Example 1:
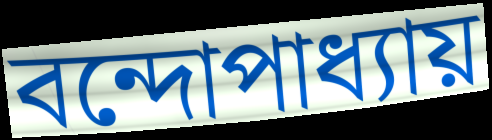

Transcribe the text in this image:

বন্দোপাধ্যায়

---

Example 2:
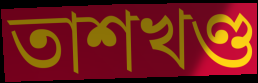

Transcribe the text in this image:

তাশখণ্ড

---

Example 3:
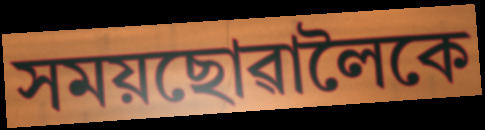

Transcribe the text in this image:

সময়ছোৱালৈকে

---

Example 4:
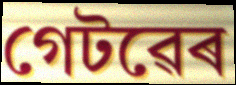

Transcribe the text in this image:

গেটৱেৰ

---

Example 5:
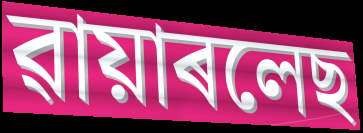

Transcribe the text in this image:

ৱায়াৰলেছ